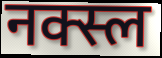
नक्स्ल